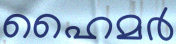
ഹൈമർ